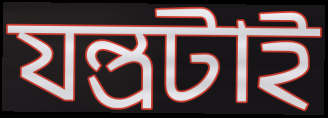
যন্ত্রটাই